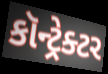
કૉન્ટ્રેક્ટર